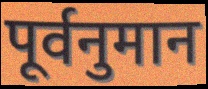
पूर्वनुमान